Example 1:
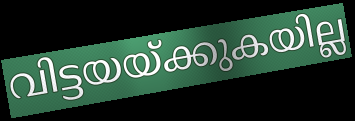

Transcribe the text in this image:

വിട്ടയയ്ക്കുകയില്ല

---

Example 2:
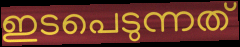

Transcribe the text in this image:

ഇടപെടുന്നത്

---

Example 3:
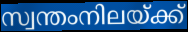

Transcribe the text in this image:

സ്വന്തംനിലയ്ക്ക്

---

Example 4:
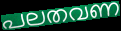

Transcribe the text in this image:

പലതവണ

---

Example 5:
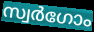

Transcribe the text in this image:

സ്വർഗോം